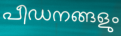
പീഡനങ്ങളും